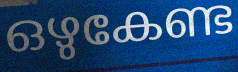
ഒഴുകേണ്ട